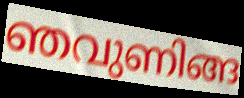
ഞവുണിങ്ങ